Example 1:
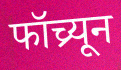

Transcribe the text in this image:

फॉच्र्यून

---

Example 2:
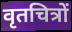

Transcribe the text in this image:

वृतचित्रों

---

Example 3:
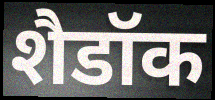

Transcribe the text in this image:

शैडॉक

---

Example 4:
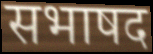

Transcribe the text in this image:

सभाषद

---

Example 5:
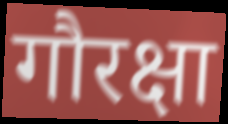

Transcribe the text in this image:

गौरक्षा